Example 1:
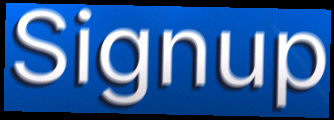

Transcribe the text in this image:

Signup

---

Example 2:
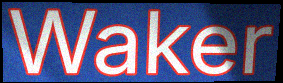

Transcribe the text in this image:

Waker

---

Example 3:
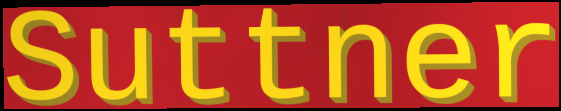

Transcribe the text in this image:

Suttner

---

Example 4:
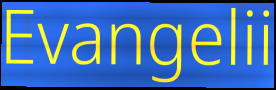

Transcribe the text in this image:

Evangelii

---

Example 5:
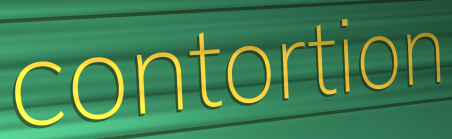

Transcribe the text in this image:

contortion